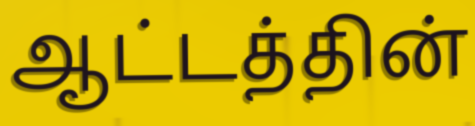
ஆட்டத்தின்